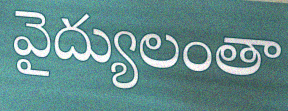
వైద్యులంతా